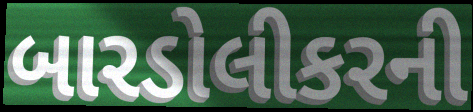
બારડોલીકરની